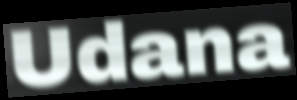
Udana